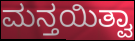
ಮನ್ತಯಿತ್ವಾ